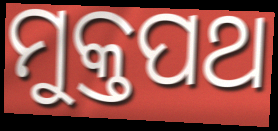
ମୁକ୍ତପଥ